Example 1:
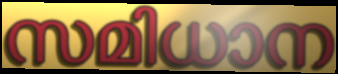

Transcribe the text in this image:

സമിധാന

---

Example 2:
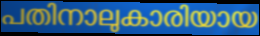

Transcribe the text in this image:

പതിനാലുകാരിയായ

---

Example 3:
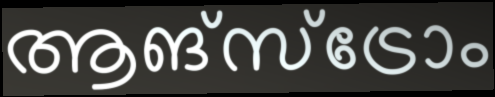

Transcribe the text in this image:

ആങ്സ്ട്രോം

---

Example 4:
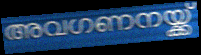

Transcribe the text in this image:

അവഗണനയ്ക്ക്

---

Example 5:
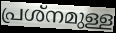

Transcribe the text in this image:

പ്രശ്നമുള്ള